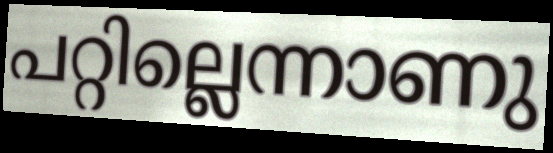
പറ്റില്ലെന്നാണു